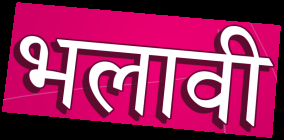
भलावी